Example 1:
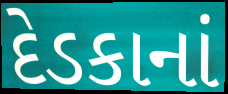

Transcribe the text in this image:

દેડકાનાં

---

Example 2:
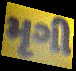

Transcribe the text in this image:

મૃગી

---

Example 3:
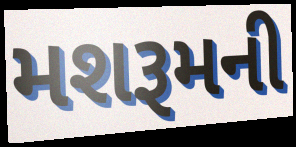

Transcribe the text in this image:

મશરૂમની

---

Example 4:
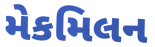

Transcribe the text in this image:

મેકમિલન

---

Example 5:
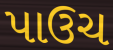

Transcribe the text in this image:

પાઉચ